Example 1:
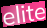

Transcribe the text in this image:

elite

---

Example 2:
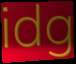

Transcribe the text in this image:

idg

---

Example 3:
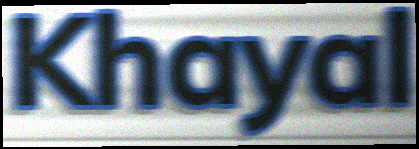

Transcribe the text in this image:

Khayal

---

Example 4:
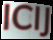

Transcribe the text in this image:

ICIJ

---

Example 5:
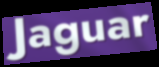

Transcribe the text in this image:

Jaguar